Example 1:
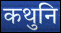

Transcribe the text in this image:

कथुनि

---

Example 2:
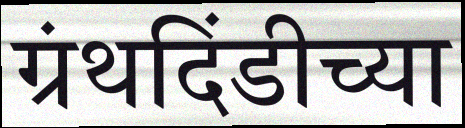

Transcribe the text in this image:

ग्रंथदिंडीच्या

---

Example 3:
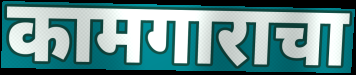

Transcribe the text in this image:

कामगाराचा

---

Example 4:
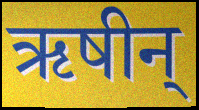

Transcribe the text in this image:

ऋषीन्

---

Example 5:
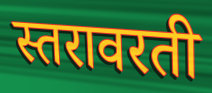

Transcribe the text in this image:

स्तरावरती